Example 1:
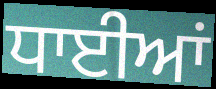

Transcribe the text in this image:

ਧਾਈਆਂ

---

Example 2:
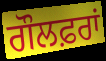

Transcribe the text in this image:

ਗੌਲਫ਼ਰਾਂ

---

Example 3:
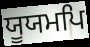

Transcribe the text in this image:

ਯੂਯਮਪਿ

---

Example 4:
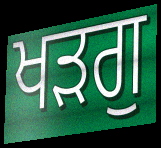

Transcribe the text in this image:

ਖੜਗੁ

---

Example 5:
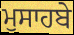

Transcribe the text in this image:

ਮੁਸਾਹਬੇ